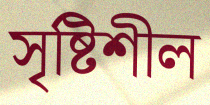
সৃষ্টিশীল